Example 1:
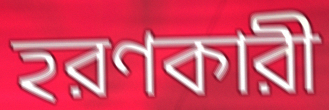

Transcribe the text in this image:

হরণকারী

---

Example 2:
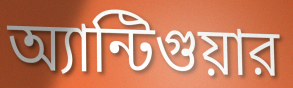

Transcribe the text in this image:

অ্যান্টিগুয়ার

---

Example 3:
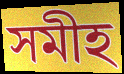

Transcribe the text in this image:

সমীহ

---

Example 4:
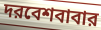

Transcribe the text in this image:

দরবেশবাবার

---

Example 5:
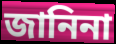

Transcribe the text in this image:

জানিনা